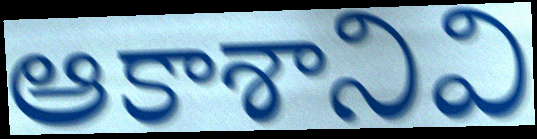
ఆకాశానివి